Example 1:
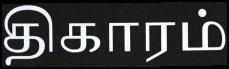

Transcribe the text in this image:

திகாரம்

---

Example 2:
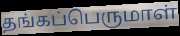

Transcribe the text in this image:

தங்கப்பெருமாள்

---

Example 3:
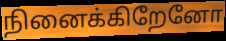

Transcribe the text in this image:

நினைக்கிறேனோ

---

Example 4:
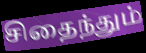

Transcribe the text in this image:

சிதைந்தும்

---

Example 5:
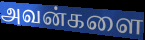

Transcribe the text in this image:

அவன்களை